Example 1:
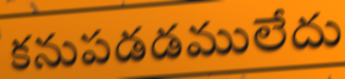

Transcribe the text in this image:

కనుపడడములేదు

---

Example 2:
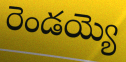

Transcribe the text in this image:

రెండయ్యె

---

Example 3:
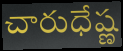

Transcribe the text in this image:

చారుధేష్ణ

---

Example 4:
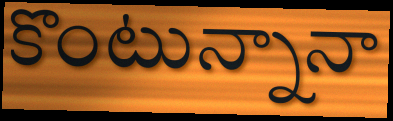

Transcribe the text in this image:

కొంటున్నానా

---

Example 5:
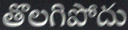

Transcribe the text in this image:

తొలగిపోదు